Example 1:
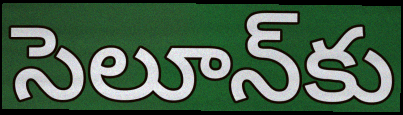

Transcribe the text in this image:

సెలూన్‌కు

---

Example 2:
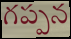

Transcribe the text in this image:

గప్పన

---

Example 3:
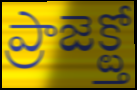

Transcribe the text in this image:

ప్రాజెక్ట్తో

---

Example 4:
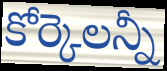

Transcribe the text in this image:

కోర్కెలన్నీ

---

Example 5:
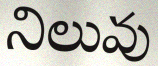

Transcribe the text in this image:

నిలువు